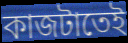
কাজটাতেই